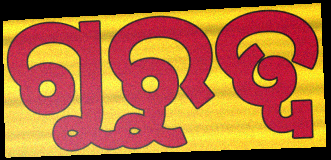
ଗୁରୁତ୍ବ